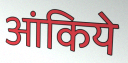
आंकिये